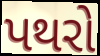
પથરો